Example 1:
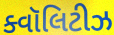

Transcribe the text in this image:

ક્વૉલિટીઝ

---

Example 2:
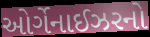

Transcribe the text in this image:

ઓર્ગેનાઈઝરનો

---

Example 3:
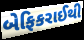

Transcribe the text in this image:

બેફિકરાઈથી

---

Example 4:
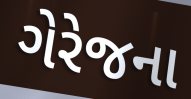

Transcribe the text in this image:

ગેરેજના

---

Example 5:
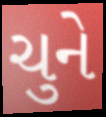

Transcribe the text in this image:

ચુને